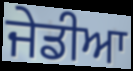
ਜੇਡੀਆ